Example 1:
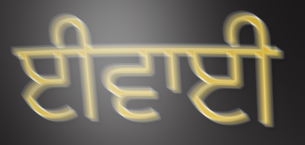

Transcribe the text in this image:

ਈਵਾਈ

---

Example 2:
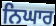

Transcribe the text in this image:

ਨਿਘਾਰ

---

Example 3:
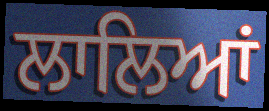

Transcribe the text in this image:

ਲਾਲਿਆਂ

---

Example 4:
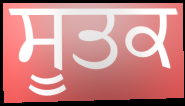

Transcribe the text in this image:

ਸੂਤਕ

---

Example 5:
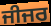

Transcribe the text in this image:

ਜੀਜਰ